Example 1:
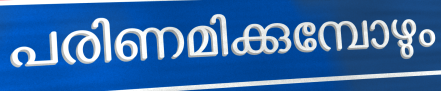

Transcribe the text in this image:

പരിണമിക്കുമ്പോഴും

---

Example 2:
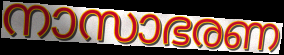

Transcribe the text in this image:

നാസാഭരണ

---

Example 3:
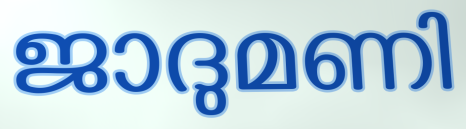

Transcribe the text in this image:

ജാദുമണി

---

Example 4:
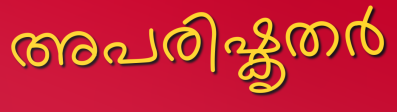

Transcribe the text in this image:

അപരിഷ്കൃതർ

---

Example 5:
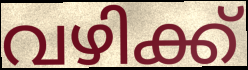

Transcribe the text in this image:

വഴിക്ക്